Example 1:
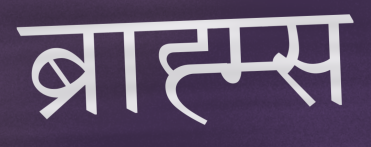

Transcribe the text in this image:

ब्राह्म्स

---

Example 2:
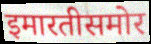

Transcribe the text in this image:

इमारतीसमोर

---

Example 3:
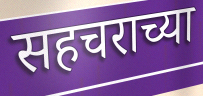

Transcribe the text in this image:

सहचराच्या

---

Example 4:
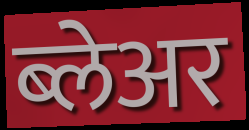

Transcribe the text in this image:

ब्लेअर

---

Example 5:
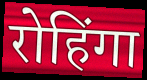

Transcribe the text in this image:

रोहिंगा